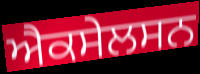
ਐਕਸੇਲਸਨ